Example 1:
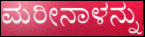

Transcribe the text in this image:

ಮರೀನಾಳನ್ನು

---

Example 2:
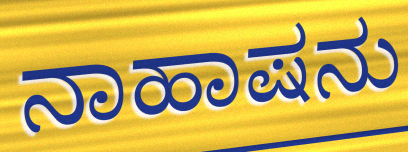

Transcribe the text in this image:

ನಾಹಾಷನು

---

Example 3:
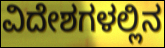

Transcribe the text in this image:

ವಿದೇಶಗಳಲ್ಲಿನ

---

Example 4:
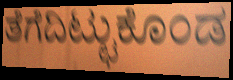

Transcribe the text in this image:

ತೆಗೆದಿಟ್ಟುಕೊಂಡ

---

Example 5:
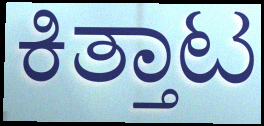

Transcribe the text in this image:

ಕಿತ್ತಾಟ